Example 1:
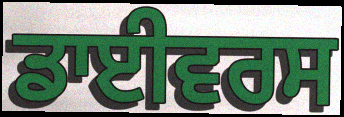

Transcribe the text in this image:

ਡਾਈਵਰਸ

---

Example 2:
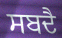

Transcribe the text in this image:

ਸਬਦੈ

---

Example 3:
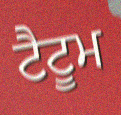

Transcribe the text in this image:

ਟੈਟੂਮ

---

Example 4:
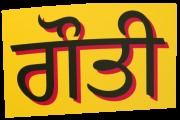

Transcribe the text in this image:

ਗੌਤੀ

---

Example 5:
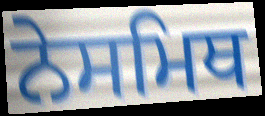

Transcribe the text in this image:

ਨੇਸਮਿਥ